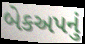
બેકઅપનું